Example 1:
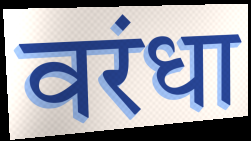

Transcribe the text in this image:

वरंधा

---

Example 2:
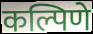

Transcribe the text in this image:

कल्पिणे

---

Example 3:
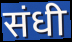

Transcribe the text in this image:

संधी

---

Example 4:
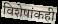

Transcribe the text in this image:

विशेषांकही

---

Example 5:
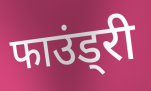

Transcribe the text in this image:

फाउंड्री